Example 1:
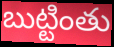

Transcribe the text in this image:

బుట్టింతు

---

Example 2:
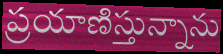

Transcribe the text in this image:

ప్రయాణిస్తున్నాను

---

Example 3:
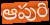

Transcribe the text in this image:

ఆపురి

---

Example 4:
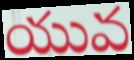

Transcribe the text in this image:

యువ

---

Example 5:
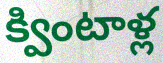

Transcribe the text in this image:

క్వింటాళ్ల